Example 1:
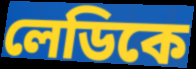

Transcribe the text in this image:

লেডিকে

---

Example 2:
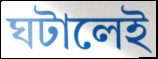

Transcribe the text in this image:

ঘটালেই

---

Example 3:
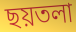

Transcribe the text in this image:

ছয়তলা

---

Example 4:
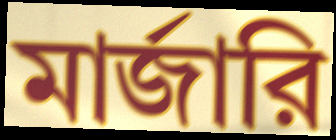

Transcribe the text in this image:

মার্জারি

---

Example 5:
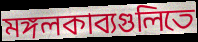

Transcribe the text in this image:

মঙ্গলকাব্যগুলিতে